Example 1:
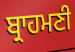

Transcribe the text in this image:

ਬ੍ਰਾਹਮਣੀ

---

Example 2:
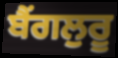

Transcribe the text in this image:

ਬੈਂਗਲੁਰੂ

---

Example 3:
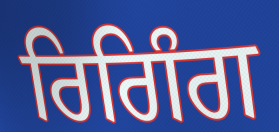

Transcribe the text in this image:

ਰਿਗਿੰਗ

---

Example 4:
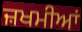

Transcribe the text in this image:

ਜ਼ਖਮੀਆਂ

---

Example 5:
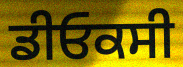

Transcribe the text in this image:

ਡੀਓਕਸੀ